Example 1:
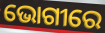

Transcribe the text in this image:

ଭୋଗୀରେ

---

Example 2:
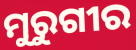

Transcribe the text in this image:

ମୁରୁଗୀର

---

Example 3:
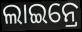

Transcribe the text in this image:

ଲାଇନ୍ରେ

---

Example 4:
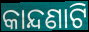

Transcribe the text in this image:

କାନ୍ଦଣାଟି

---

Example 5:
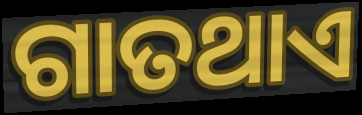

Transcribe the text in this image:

ଗାତଥାଏ